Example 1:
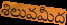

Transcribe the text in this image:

శిలువమీద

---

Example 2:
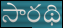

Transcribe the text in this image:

సారథి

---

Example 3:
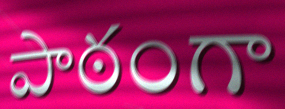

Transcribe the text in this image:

పాఠంగా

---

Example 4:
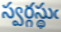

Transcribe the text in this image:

స్వర్గస్థుఁ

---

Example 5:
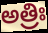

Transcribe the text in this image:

అత్రిః